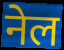
नेल